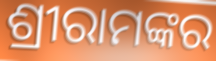
ଶ୍ରୀରାମଙ୍କର